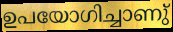
ഉപയോഗിച്ചാണു്